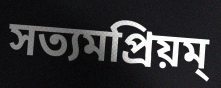
সত্যমপ্রিয়ম্